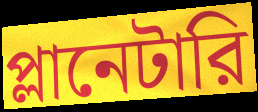
প্লানেটারি